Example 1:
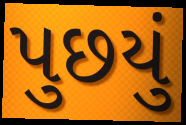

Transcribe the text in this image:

પુછયું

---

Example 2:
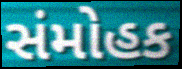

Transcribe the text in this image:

સંમોહક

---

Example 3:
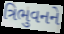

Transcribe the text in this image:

ત્રિભુવનને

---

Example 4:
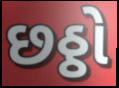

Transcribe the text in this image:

છઠ્ઠો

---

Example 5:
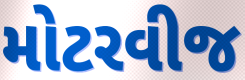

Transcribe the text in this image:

મોટરવીજ